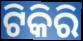
ଟିକିରି